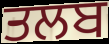
ਤਲਬ